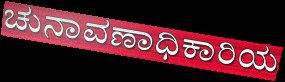
ಚುನಾವಣಾಧಿಕಾರಿಯ